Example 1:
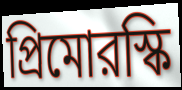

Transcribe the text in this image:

প্রিমোরস্কি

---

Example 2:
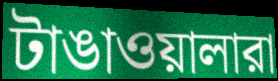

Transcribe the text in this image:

টাঙাওয়ালারা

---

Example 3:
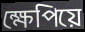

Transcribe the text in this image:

ক্ষেপিয়ে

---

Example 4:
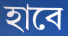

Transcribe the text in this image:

হাবে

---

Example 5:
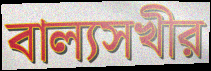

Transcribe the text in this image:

বাল্যসখীর